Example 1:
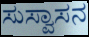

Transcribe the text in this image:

ಸುಸ್ವಾಸನ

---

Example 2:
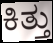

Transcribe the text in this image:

ಕಿತ್ತು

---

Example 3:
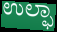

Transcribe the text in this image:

ಉಲ್ಫಾ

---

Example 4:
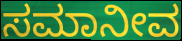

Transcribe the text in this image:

ಸಮಾನೀವ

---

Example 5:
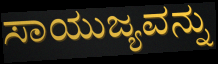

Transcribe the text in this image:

ಸಾಯುಜ್ಯವನ್ನು